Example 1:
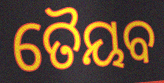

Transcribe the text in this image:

ତୈୟବ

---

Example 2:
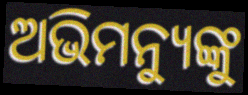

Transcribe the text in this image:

ଅଭିମନ୍ୟୁଙ୍କୁ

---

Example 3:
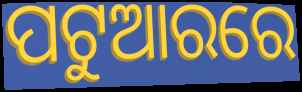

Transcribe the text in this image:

ପଟୁଆରରେ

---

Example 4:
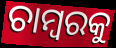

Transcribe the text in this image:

ଚାମ୍ବରକୁ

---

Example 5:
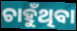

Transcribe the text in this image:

ଚାହୁଁଥିବା